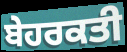
ਬੇਹਰਕਤੀ